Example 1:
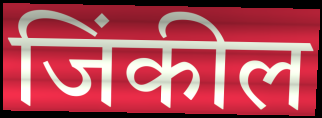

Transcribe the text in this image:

जिंकील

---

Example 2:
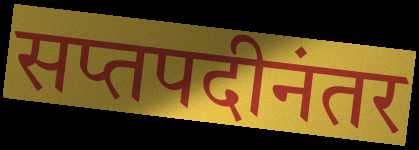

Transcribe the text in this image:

सप्तपदीनंतर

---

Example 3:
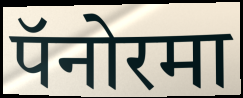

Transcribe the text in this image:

पॅनोरमा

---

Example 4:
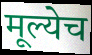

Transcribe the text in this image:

मूल्येच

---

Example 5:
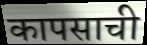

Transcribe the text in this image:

कापसाची